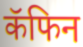
कॅफिन